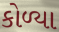
કોળ્યા